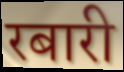
रबारी